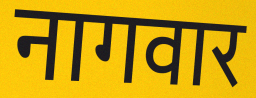
नागवार